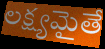
లక్ష్యమైతే